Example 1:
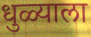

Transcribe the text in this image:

धुळ्याला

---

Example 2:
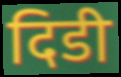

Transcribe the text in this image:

दिडी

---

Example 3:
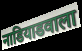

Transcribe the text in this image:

नाडियाडवाला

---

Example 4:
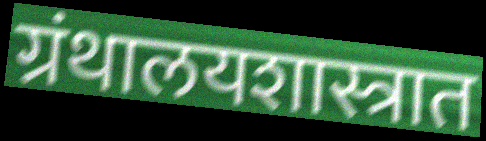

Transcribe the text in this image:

ग्रंथालयशास्त्रात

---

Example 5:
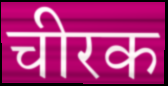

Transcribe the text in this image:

चीरक